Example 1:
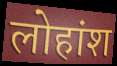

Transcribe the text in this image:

लोहांश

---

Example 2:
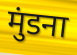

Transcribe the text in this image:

मुंडना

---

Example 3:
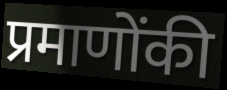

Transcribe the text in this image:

प्रमाणोंकी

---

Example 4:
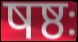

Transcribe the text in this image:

षष्ठः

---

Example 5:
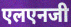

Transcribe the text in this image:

एलएनजी